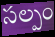
సల్పం